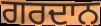
ਗਰਦਾਨ